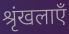
श्रृंखलाएँ